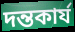
দন্তকার্য